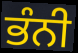
ਭੰਨੀ